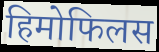
हिमोफिलस